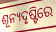
ଶୂନ୍ୟଦୃଷ୍ଟିରେ